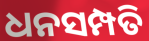
ଧନସମ୍ପତି